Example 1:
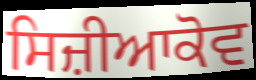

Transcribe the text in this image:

ਸਿਜ਼ੀਆਕੋਵ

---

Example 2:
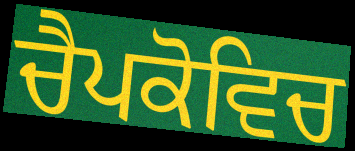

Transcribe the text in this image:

ਚੈਪਕੋਵਿਚ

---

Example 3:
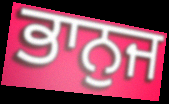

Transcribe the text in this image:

ਭਾਨੁਜ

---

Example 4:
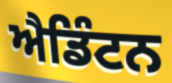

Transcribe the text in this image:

ਐਡਿੰਟਨ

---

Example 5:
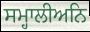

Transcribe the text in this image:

ਸਮ੍ਹਾਲੀਅਨਿ